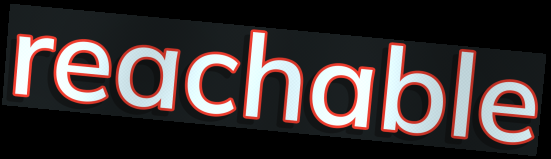
reachable